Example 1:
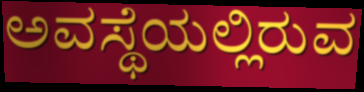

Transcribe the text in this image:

ಅವಸ್ಥೆಯಲ್ಲಿರುವ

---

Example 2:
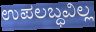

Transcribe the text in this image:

ಉಪಲಬ್ಧವಿಲ್ಲ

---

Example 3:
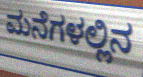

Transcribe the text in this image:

ಮನೆಗಳಲ್ಲಿನ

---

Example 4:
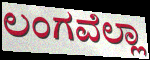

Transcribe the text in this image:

ಲಂಗವೆಲ್ಲಾ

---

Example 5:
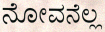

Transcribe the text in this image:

ನೋವನೆಲ್ಲ